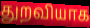
துறவியாக